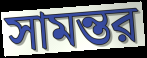
সামন্তর